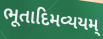
ભૂતાદિમવ્યયમ્